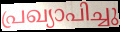
പ്രഖ്യാപിച്ചു